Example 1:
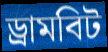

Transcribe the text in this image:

ড্রামবিট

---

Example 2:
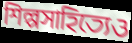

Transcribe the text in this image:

শিল্পসাহিত্যেও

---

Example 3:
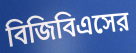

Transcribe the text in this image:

বিজিবিএসের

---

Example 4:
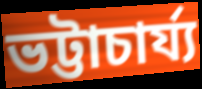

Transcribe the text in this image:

ভট্টাচার্য্য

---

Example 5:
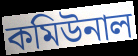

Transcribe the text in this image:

কমিউনাল